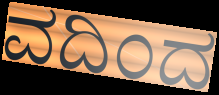
ವದಿಂದ